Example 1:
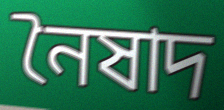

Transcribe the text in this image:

নৈষাদ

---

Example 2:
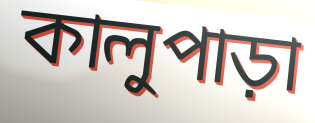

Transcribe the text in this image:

কালুপাড়া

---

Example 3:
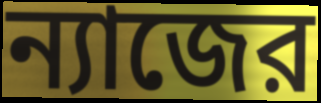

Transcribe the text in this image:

ন্যাজের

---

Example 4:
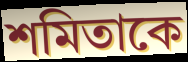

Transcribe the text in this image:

শমিতাকে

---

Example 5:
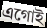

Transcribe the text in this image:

এগোই